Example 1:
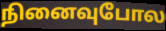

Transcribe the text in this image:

நினைவுபோல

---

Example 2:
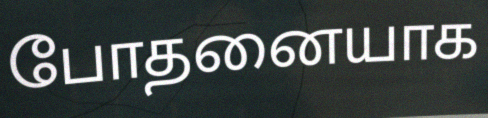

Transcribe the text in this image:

போதனையாக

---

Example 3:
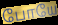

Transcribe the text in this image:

போயே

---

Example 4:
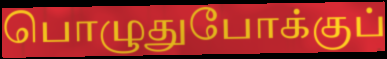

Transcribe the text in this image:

பொழுதுபோக்குப்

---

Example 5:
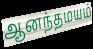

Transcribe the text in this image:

ஆனந்தமயம்